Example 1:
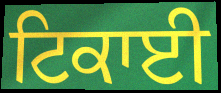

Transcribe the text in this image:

ਟਿਕਾਈ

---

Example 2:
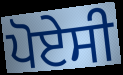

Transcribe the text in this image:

ਪੋਏਸੀ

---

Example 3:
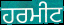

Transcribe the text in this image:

ਹਰਮੀਟ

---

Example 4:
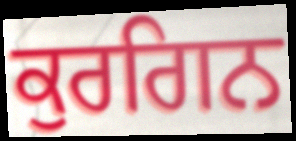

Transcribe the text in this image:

ਕੁਰਗਿਨ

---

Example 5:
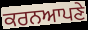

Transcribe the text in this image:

ਕਰਨਆਪਣੇ